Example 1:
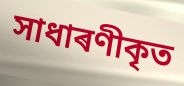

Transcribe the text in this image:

সাধাৰণীকৃত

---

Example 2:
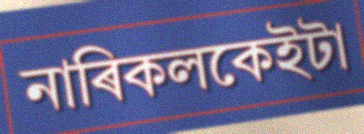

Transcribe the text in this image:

নাৰিকলকেইটা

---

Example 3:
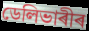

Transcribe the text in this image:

ডেলিভাৰীৰ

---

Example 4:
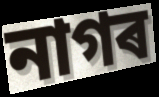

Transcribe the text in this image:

নাগৰ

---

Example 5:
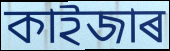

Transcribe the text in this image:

কাইজাৰ